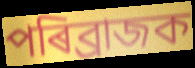
পৰিব্ৰাজক